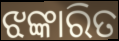
ଝଙ୍କାରିତ